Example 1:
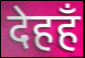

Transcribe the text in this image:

देहहँ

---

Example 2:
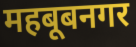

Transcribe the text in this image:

महबूबनगर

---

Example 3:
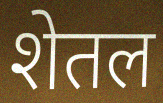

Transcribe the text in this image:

शेतल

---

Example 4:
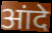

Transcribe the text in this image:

आंदे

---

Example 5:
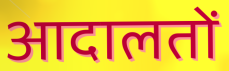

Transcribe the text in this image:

आदालतों